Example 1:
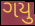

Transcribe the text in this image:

ગયુ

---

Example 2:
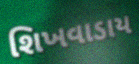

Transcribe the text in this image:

શિખવાડાય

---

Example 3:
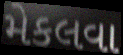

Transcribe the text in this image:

મેકલવા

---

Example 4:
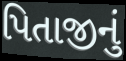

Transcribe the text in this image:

પિતાજીનું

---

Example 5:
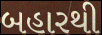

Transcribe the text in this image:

બહારથી